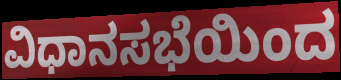
ವಿಧಾನಸಭೆಯಿಂದ